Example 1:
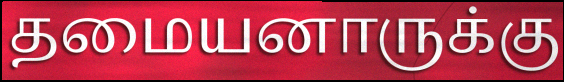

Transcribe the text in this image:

தமையனாருக்கு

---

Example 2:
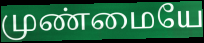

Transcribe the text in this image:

முண்மையே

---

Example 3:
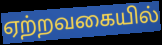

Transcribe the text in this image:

ஏற்றவகையில்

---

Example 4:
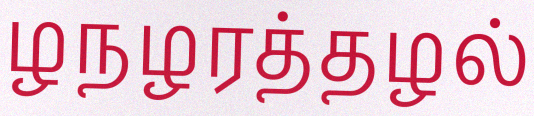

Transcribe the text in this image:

ழநழரத்தழல்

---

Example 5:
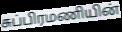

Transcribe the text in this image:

சுப்பிரமணியின்